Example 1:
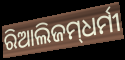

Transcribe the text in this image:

ରିଆଲିଜମ୍‌ଧର୍ମୀ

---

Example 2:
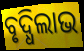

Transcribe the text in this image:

ବୃଦ୍ଧିଲାଭ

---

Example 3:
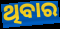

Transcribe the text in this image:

ଥିବାର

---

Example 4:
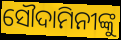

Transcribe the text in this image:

ସୌଦାମିନୀଙ୍କୁ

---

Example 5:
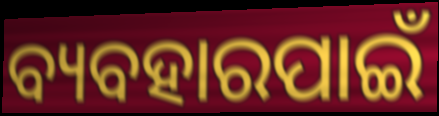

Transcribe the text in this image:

ବ୍ୟବହାରପାଇଁ